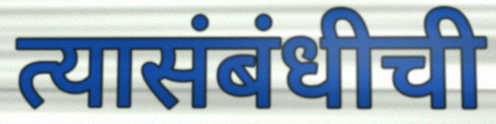
त्यासंबंधीची